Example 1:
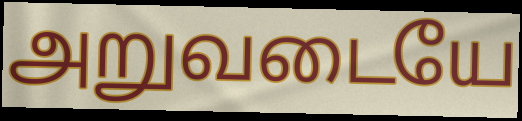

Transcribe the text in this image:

அறுவடையே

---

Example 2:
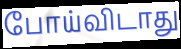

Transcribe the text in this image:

போய்விடாது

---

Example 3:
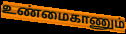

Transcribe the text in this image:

உண்மைகாணும்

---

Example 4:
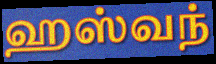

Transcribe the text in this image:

ஹஸ்வந்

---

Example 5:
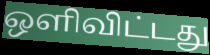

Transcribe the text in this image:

ஒளிவிட்டது